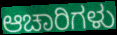
ಆಚಾರಿಗಳು